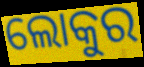
ଲୋକୁର